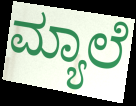
ಮ್ಯಾಲೆ